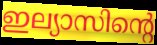
ഇല്യാസിന്റെ